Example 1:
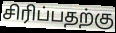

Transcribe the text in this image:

சிரிப்பதற்கு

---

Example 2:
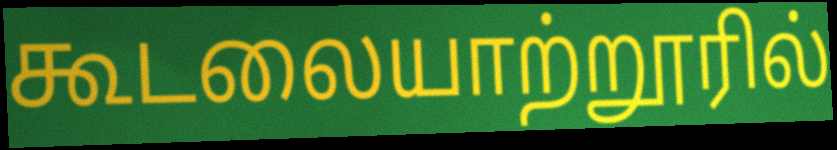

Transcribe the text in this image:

கூடலையாற்றூரில்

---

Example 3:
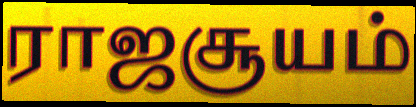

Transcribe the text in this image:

ராஜசூயம்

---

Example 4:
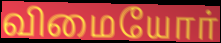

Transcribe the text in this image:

விமையோர்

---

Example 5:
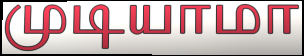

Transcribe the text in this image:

முடியாமா